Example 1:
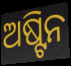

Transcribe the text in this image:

ଅଷ୍ଟିନ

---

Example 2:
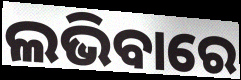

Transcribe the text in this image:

ଲଭିବାରେ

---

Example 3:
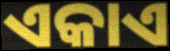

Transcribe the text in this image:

ଏକାଏ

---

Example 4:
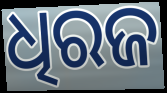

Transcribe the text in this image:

ଧିରଜ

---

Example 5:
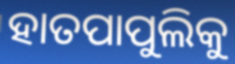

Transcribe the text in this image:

ହାତପାପୁଲିକୁ